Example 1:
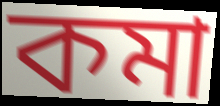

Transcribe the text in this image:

কমা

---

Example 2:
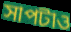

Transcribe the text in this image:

সাপটাও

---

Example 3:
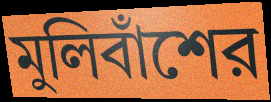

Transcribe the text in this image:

মুলিবাঁশের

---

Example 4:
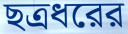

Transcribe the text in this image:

ছত্রধরের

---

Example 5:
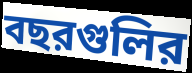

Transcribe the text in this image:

বছরগুলির